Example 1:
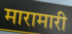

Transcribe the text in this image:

मारामारी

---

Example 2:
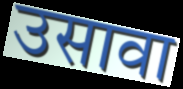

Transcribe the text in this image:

उसावा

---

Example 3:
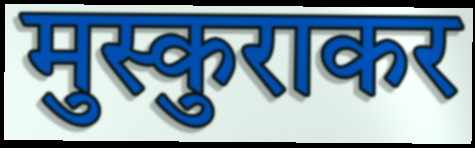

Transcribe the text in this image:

मुस्कुराकर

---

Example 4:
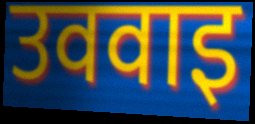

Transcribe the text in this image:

उववाइ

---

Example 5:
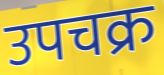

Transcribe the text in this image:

उपचक्र